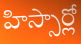
హిస్సార్లో